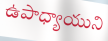
ఉపాధ్యాయుని